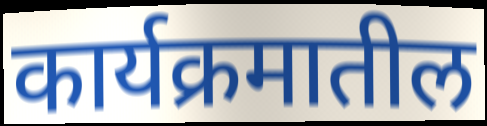
कार्यक्रमातील